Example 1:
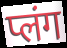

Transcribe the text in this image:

प्लंग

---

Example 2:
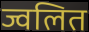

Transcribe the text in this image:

ज्वलित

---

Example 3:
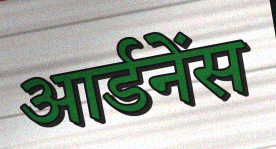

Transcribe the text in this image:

आर्डनेंस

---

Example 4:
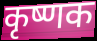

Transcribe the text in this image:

कृष्णक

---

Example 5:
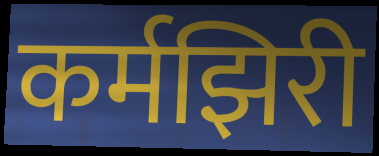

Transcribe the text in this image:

कर्मझिरी